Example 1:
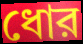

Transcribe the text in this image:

ধোর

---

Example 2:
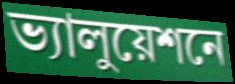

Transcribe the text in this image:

ভ্যালুয়েশনে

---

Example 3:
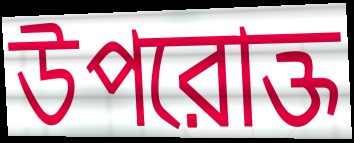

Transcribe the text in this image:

উপরোক্ত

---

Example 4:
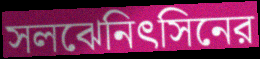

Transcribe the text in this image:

সলঝেনিৎসিনের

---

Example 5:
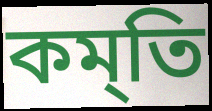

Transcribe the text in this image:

কম্‌তি